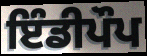
ਇੰਡੀਪੌਪ